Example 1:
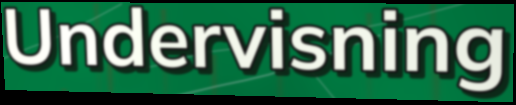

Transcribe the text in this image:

Undervisning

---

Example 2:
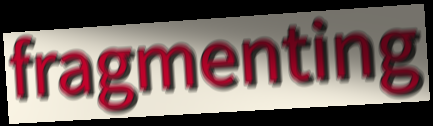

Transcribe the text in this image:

fragmenting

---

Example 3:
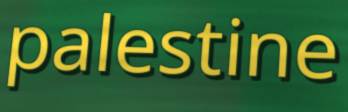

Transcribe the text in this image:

palestine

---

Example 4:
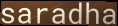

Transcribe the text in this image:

saradha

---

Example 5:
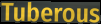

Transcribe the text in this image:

Tuberous